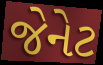
જેનેટ